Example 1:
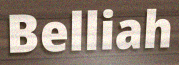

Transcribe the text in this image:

Belliah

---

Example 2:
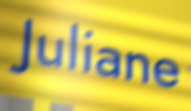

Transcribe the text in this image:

Juliane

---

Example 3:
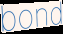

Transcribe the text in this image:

bond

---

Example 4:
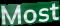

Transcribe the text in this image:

Most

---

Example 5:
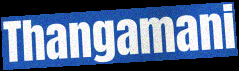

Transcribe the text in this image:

Thangamani